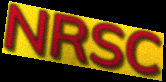
NRSC